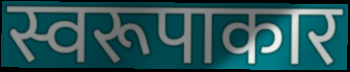
स्वरूपाकार